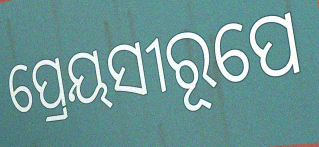
ପ୍ରେୟସୀରୂପେ